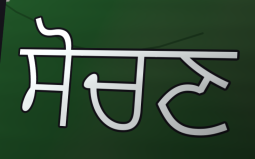
ਸੋਚਣ